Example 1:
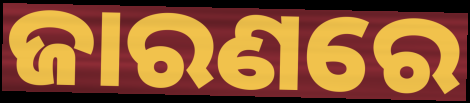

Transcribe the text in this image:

ଜାରଣରେ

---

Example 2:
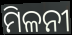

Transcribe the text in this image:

ମିଳନୀ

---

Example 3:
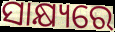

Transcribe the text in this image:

ସାକ୍ଷ୍ୟରେ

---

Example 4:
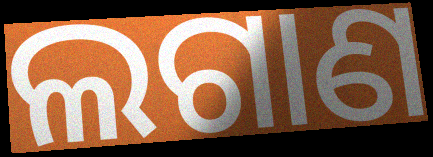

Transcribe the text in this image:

ଲଗାଣ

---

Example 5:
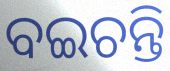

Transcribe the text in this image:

ବଇଚନ୍ତି